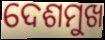
ଦେଶମୁଖ